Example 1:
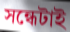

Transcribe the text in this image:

সন্ধেটাই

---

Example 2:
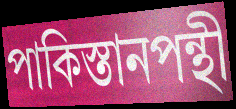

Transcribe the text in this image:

পাকিস্তানপন্থী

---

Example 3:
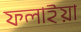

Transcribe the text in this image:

ফলাইয়া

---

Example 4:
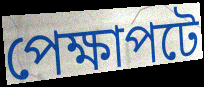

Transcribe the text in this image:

পেক্ষাপটে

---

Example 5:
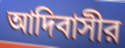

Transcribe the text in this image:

আদিবাসীর